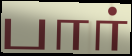
பார்